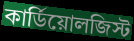
কার্ডিয়োলজিস্ট